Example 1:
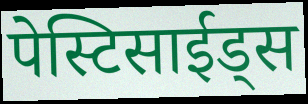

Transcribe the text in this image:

पेस्टिसाईड्स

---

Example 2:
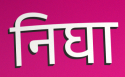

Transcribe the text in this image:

निघा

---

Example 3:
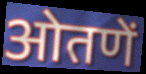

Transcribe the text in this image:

ओतणें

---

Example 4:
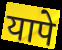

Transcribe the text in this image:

यापे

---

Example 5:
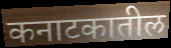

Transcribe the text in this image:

कनाटकातील